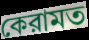
কেরামত